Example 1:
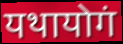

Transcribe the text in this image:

यथायोगं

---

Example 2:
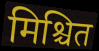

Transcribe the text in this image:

मिश्चित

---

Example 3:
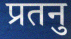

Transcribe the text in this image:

प्रतनु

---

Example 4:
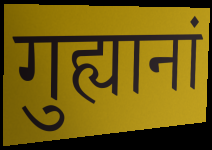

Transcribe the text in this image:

गुह्यानां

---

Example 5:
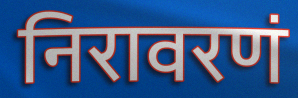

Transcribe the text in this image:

निरावरणं